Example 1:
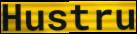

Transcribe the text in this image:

Hustru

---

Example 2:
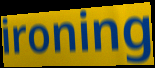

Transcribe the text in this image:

ironing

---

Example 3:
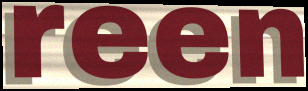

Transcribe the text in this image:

reen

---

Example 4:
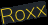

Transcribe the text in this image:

Roxx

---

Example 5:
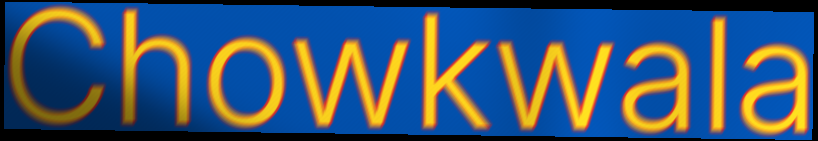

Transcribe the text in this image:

Chowkwala